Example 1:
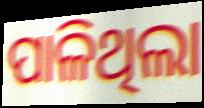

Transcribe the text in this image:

ପାଳିଥିଲା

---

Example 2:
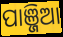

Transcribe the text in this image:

ପାଞ୍ଜିଆ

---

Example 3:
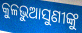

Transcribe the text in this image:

କୁଳଭୁଆସୁଣୀଙ୍କୁ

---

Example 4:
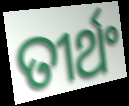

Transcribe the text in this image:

ତୀର୍ଥଂ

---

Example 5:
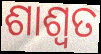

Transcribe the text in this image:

ଶାଶ୍ୱତ